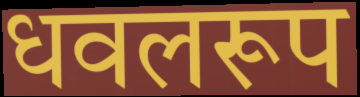
धवलरूप